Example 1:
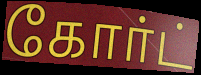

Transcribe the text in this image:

கோர்ட்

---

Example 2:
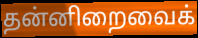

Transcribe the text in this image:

தன்னிறைவைக்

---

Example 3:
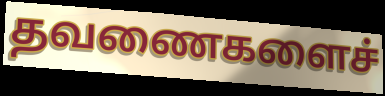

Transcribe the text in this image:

தவணைகளைச்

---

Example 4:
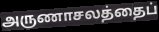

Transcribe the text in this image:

அருணாசலத்தைப்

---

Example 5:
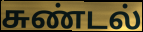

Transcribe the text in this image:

சுண்டல்